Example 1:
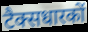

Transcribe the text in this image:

टैक्सधारकों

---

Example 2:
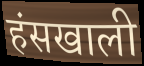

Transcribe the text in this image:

हंसखाली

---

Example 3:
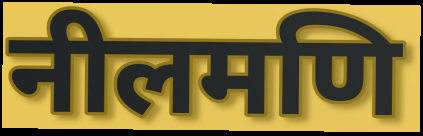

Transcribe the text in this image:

नीलमणि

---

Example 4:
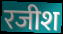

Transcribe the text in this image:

रजीश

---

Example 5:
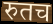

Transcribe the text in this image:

रुतच